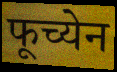
फूच्येन